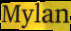
Mylan